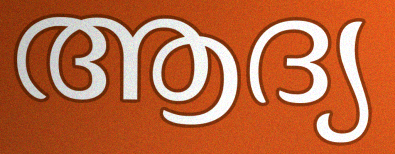
ആദ്യ